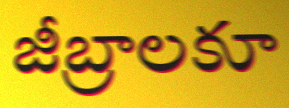
జీబ్రాలకూ